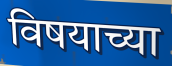
विषयाच्या